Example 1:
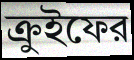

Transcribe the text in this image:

ক্রুইফের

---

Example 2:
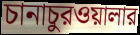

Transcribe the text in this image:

চানাচুরওয়ালার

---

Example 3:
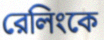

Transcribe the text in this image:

রেলিংকে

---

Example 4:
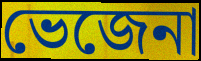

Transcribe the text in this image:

ভেজেনা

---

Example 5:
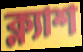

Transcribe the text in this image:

ক্ল্যাশ